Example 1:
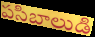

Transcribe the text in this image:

పసిబాలుడి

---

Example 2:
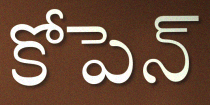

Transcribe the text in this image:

కోపెన్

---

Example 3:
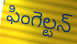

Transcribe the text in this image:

ఫింగెల్టన్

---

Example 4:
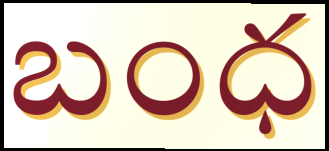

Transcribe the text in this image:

బంధ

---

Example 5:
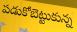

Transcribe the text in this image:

పడుకోబెట్టుకున్న